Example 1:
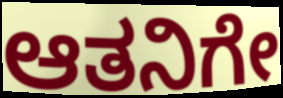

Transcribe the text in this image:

ಆತನಿಗೇ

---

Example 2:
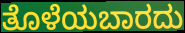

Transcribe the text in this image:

ತೊಳೆಯಬಾರದು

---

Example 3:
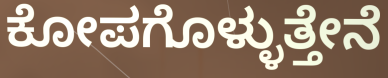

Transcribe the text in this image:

ಕೋಪಗೊಳ್ಳುತ್ತೇನೆ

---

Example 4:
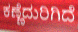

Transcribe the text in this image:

ಕಣ್ಣೆದುರಿಗಿದೆ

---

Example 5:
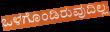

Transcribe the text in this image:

ಒಳಗೊಂಡಿರುವುದಿಲ್ಲ